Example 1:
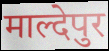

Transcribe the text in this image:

माल्देपुर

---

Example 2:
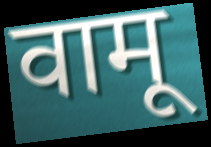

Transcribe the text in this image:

वामू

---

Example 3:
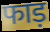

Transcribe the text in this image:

फाड़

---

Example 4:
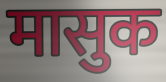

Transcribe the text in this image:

मासुक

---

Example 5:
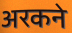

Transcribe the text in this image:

अरकने